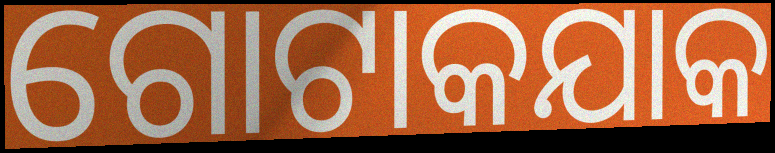
ଗୋଟାକଯାକ